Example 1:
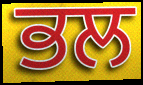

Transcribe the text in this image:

ਭਲ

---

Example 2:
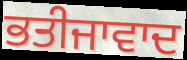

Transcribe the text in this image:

ਭਤੀਜਾਵਾਦ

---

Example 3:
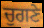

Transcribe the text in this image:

ਚੁਗਣੇ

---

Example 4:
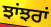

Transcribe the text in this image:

ਝਾਂਝਰਾਂ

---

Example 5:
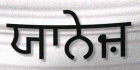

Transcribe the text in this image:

ਯਾਨੇਜ਼